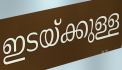
ഇടയ്ക്കുള്ള